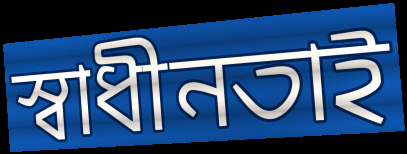
স্বাধীনতাই